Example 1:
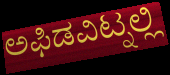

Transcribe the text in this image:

ಅಫಿಡವಿಟ್ನಲ್ಲಿ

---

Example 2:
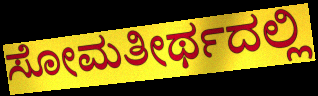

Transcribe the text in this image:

ಸೋಮತೀರ್ಥದಲ್ಲಿ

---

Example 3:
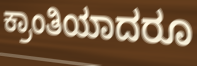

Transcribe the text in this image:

ಕ್ರಾಂತಿಯಾದರೂ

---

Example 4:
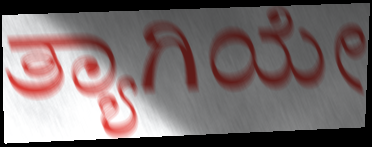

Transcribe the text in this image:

ತ್ಯಾಗಿಯೇ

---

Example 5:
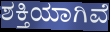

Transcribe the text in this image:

ಶಕ್ತಿಯಾಗಿವೆ